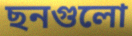
ছনগুলো